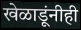
खेळाडूंनीही